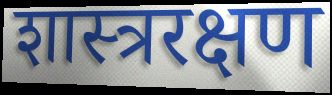
शास्त्ररक्षण